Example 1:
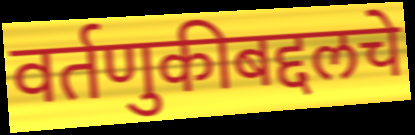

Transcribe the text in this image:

वर्तणुकीबद्दलचे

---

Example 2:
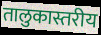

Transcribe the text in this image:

तालुकास्तरीय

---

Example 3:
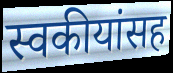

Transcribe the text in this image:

स्वकीयांसह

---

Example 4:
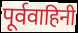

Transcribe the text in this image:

पूर्ववाहिनी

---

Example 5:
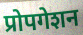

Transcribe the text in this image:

प्रोपगेशन